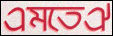
এমতেঐ